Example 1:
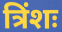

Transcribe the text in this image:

त्रिंशः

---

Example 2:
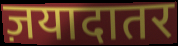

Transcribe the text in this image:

ज़यादातर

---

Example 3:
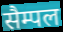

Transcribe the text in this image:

सैम्पल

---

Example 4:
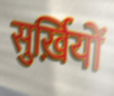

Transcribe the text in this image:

सुर्ख़ियों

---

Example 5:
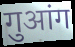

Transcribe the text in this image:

गुआंग